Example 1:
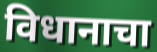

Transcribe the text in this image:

विधानाचा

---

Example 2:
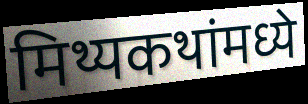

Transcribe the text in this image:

मिथ्यकथांमध्ये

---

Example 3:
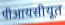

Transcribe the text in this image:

पीआयसीयूत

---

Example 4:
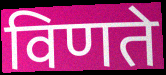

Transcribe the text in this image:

विणते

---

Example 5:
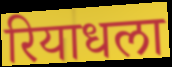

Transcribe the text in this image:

रियाधला